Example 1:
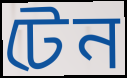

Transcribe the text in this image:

টেন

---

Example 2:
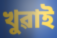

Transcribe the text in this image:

খুৱাই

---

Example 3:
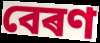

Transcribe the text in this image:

বেৰণ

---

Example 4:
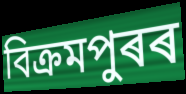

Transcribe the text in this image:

বিক্ৰমপুৰৰ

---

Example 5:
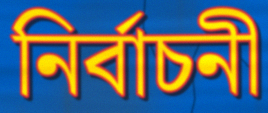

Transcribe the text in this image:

নিৰ্বাচনী